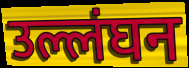
उल्लंघन